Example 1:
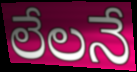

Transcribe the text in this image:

లేలనే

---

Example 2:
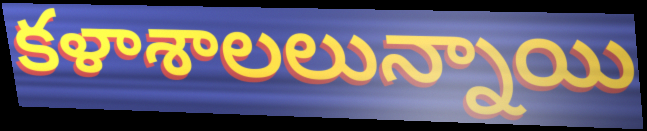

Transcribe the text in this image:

కళాశాలలున్నాయి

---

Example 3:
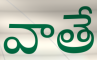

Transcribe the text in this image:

వాతే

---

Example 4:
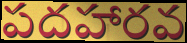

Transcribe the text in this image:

పదహారవ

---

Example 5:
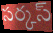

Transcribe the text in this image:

సర్కస్